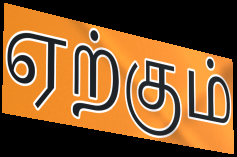
ஏற்கும்